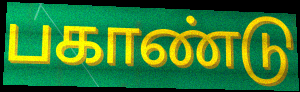
பகாண்டு